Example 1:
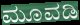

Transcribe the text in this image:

ಮೂವಡಿ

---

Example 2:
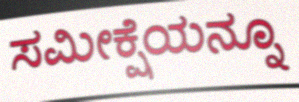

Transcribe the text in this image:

ಸಮೀಕ್ಷೆಯನ್ನೂ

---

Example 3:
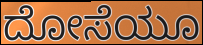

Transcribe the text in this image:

ದೋಸೆಯೂ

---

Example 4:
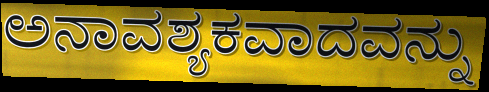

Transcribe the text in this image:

ಅನಾವಶ್ಯಕವಾದವನ್ನು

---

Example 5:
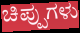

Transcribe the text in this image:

ಚಿಪ್ಪುಗಳು